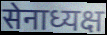
सेनाध्यक्ष